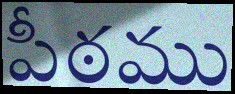
పీఠము